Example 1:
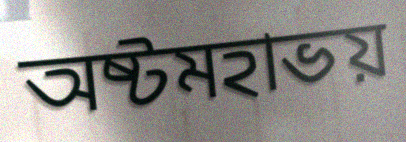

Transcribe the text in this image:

অষ্টমহাভয়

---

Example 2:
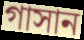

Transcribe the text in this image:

গাসান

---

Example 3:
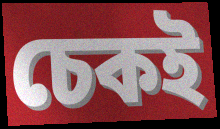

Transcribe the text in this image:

চেকই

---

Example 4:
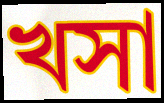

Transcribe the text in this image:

খসা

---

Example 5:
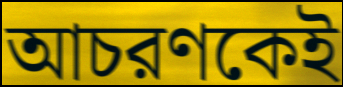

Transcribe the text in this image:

আচরণকেই